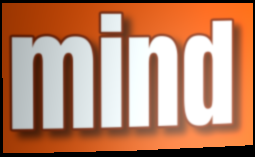
mind